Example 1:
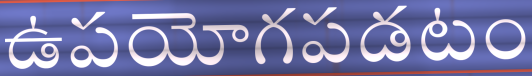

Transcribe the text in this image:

ఉపయోగపడటం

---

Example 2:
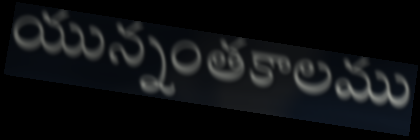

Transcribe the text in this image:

యున్నంతకాలము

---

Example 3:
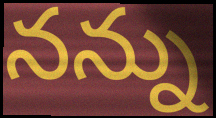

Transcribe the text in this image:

నన్ను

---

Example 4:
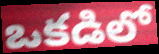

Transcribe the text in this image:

ఒకడిలో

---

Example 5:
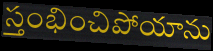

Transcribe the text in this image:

స్తంభించిపోయాను